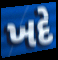
ખદે